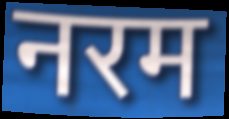
नरम